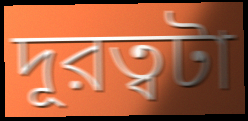
দূরত্বটা